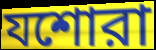
যশোরা